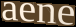
aene